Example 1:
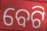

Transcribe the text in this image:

ବେଟି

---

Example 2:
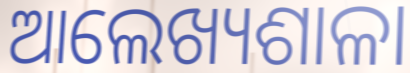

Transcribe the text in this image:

ଆଲେଖ୍ୟଶାଳା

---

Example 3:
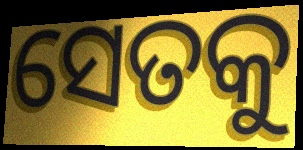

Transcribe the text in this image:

ସେତକୁ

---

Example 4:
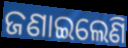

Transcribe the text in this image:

ଜଣାଇଲେଣି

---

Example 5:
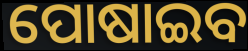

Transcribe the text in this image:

ପୋଷାଇବ